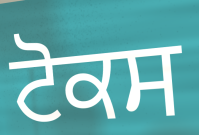
ਟੋਕਸ